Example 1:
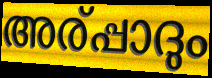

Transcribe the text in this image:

അര്പ്പാദും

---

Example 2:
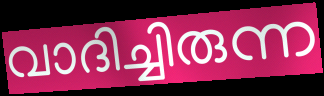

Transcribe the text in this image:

വാദിച്ചിരുന്ന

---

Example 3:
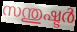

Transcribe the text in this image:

സന്തുഷ്ടർ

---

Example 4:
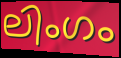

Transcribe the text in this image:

ലിംഗം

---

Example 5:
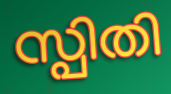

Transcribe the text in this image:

സ്പിതി